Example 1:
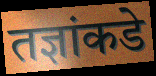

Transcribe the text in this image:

तज्ञांकडे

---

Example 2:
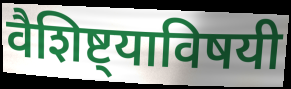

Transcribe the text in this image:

वैशिष्ट्याविषयी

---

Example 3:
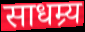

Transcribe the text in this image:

साधम्र्य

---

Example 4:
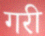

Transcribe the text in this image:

गरी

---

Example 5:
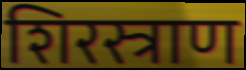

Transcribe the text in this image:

शिरस्त्राण